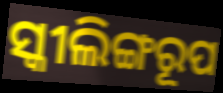
ସ୍କୀଲିଙ୍ଗରୂପ